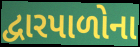
દ્વારપાળોના